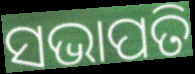
ସଭାପତି